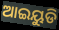
ଆଇୟୁଡି